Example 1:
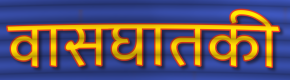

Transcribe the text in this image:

वासघातकी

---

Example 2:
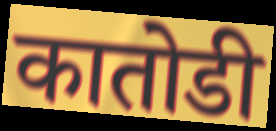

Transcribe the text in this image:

कातोडी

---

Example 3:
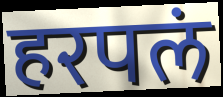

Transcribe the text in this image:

हरपलं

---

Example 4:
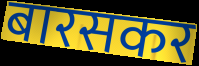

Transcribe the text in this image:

बारसकर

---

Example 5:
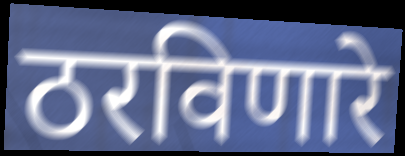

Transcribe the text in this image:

ठरविणारे